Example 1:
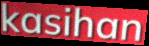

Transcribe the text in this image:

kasihan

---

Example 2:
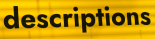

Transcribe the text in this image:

descriptions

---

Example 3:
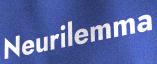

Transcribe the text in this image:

Neurilemma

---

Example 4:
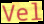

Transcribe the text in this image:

Vel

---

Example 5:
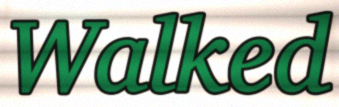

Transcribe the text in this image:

Walked